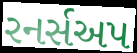
રનર્સઅપ